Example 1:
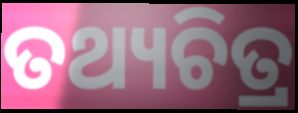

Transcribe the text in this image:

ତଥ୍ୟଚିତ୍ର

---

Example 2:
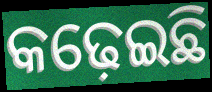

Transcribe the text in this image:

କଢ଼େଇଛି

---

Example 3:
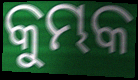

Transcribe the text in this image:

କୁମ୍ଭକ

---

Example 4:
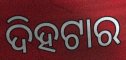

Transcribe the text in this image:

ଦିହଟାର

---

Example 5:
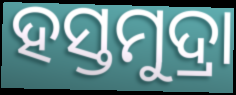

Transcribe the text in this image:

ହସ୍ତମୁଦ୍ରା